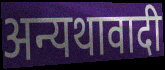
अन्यथावादी